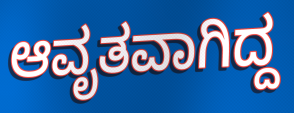
ಆವೃತವಾಗಿದ್ದ